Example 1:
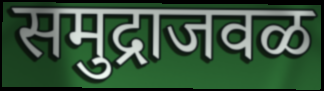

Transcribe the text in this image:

समुद्राजवळ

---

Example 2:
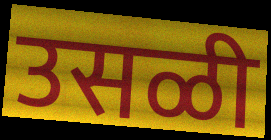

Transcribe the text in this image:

उसळी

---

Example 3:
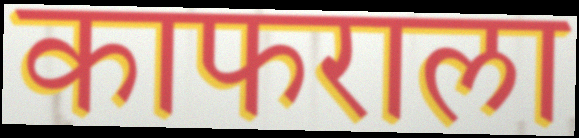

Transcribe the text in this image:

काफराला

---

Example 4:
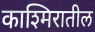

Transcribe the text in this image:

काश्मिरातील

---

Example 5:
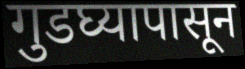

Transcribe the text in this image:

गुडघ्यापासून